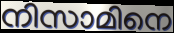
നിസാമിനെ